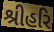
શ્રીહરિ